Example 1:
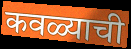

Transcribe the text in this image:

कवळ्याची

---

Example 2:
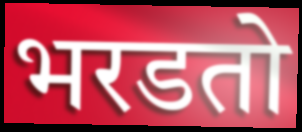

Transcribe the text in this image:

भरडतो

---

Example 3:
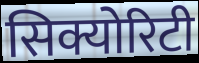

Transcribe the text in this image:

सिक्योरिटी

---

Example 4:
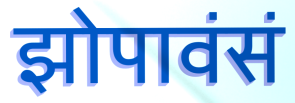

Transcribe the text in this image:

झोपावंसं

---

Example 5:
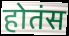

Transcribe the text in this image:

होतंस